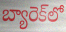
బ్యారెక్‌లో